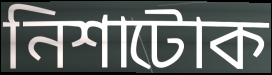
নিশাটোক